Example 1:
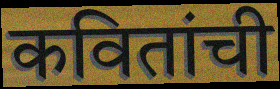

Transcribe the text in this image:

कवितांची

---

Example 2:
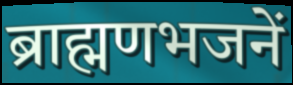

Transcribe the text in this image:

ब्राह्मणभजनें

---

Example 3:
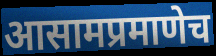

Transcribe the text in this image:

आसामप्रमाणेच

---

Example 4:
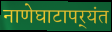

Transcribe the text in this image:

नाणेघाटापर्यंत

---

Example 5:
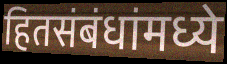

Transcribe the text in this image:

हितसंबंधांमध्ये